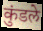
कुंडले